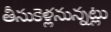
తీసుకెళ్లనున్నట్లు